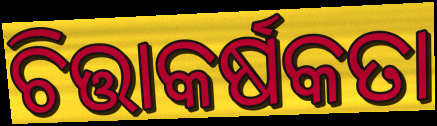
ଚିତ୍ତାକର୍ଷକତା